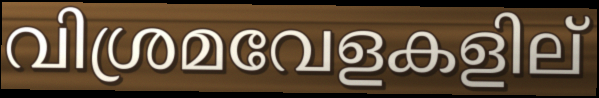
വിശ്രമവേളകളില്